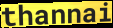
thannai